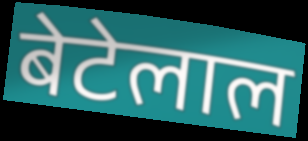
बेटेलाल